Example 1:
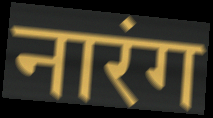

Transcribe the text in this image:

नारंग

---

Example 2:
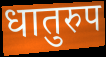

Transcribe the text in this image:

धातुरुप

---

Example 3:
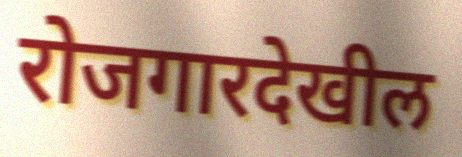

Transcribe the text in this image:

रोजगारदेखील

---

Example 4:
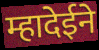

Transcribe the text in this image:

म्हादेईने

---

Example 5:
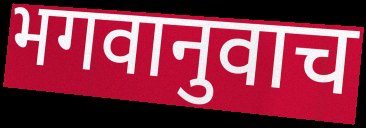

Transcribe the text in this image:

भगवानुवाच